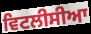
ਵਿਟਲੀਸੀਆ